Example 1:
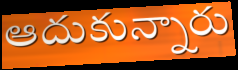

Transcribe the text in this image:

ఆదుకున్నారు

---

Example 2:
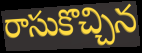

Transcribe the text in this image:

రాసుకొచ్చిన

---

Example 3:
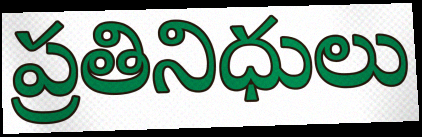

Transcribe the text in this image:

ప్రతినిధులు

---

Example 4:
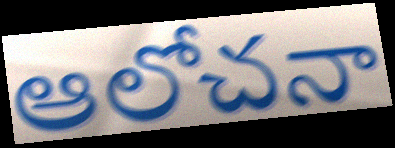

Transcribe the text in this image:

ఆలోచనా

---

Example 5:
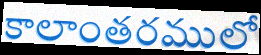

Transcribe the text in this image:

కాలాంతరములో